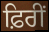
ਫ਼ਿਰੀਂ